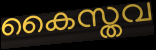
കൈസ്തവ